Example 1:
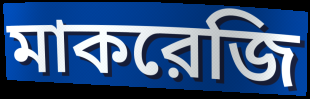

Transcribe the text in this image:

মাকরেজি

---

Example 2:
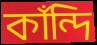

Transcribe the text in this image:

কাঁন্দি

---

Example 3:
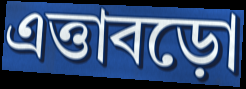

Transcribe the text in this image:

এত্তাবড়ো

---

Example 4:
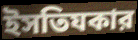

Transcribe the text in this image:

ইসতিযকার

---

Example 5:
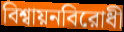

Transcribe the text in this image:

বিশ্বায়নবিরোধী